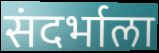
संदर्भाला